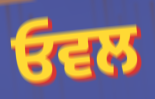
ਓਵਲ